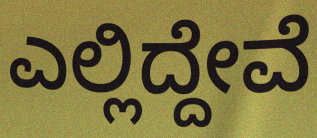
ಎಲ್ಲಿದ್ದೇವೆ